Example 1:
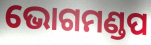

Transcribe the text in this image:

ଭୋଗମଣ୍ଡପ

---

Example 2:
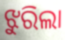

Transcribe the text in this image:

ଝୁରିଲା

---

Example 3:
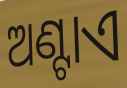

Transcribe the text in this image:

ଅଣ୍ଟାଏ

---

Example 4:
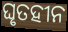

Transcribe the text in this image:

ଘୃତହୀନ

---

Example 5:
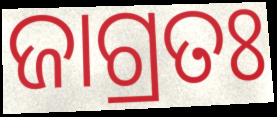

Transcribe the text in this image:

ଜାଗ୍ରତଃ